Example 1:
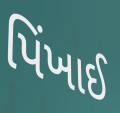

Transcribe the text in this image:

પિંખાઈ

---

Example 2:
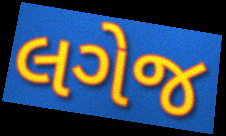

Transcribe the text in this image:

લગેજ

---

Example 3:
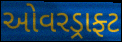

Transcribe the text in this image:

ઓવરડ્રાફ્ટ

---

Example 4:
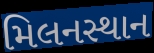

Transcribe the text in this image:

મિલનસ્થાન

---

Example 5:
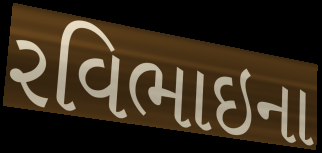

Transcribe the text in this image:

રવિભાઇના